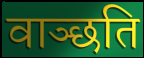
वाञ्छति